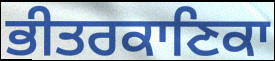
ਭੀਤਰਕਾਣਿਕਾ